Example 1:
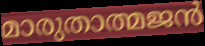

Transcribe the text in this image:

മാരുതാത്മജൻ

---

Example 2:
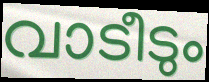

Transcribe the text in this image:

വാടീടും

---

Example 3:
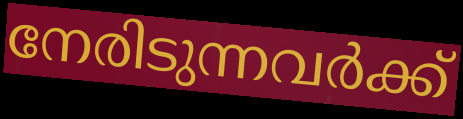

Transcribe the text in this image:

നേരിടുന്നവർക്ക്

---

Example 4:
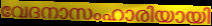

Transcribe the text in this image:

വേദനാസംഹാരിയായി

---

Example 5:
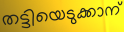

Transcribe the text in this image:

തട്ടിയെടുക്കാന്